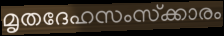
മൃതദേഹസംസ്‌ക്കാരം